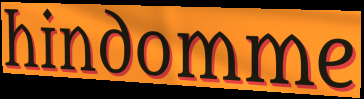
hindomme